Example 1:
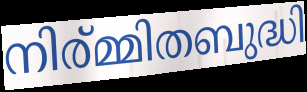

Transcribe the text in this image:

നിര്മ്മിതബുദ്ധി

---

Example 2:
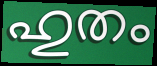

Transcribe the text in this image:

ഹുതം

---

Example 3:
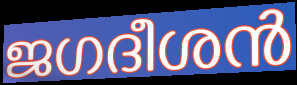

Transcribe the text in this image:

ജഗദീശൻ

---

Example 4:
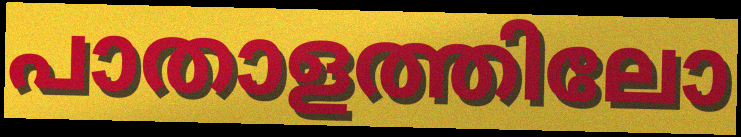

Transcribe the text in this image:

പാതാളത്തിലോ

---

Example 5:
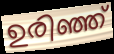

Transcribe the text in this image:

ഉരിഞ്ഞ്